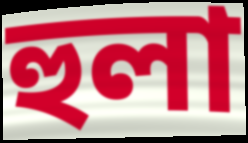
হুলা